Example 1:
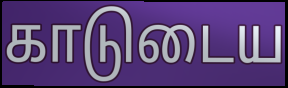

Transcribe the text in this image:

காடுடைய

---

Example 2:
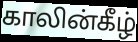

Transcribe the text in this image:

காலின்கீழ்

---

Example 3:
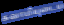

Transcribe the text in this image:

சுவாமியுடைய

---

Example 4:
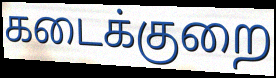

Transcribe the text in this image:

கடைக்குறை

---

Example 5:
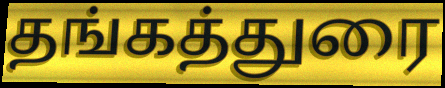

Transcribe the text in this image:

தங்கத்துரை